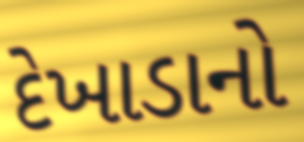
દેખાડાનો